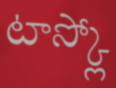
టాస్క్లో